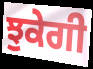
ਝੁਕੇਗੀ